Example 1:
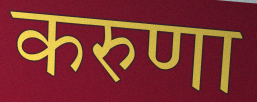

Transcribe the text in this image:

करुणा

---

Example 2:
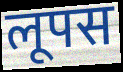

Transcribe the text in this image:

लूपस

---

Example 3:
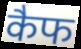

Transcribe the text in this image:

कैफ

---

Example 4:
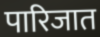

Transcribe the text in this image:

पारिजात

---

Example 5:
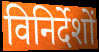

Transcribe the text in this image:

विनिर्देशों